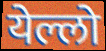
येल्लो